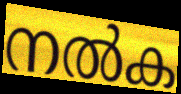
നൽക